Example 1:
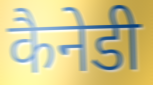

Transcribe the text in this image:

कैनेडी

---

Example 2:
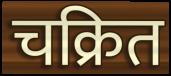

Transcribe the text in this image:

चक्रित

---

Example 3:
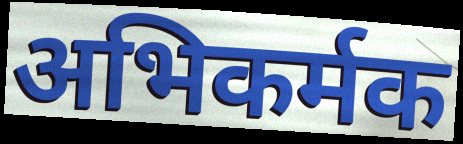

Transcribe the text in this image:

अभिकर्मक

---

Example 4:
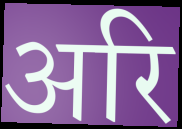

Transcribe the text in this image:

अरि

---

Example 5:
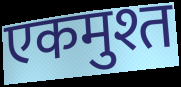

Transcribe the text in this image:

एकमुश्त